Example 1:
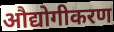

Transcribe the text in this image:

औद्योगीकरण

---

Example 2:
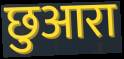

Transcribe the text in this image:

छुआरा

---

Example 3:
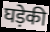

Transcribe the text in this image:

घड़ेकी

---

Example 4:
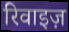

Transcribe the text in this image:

रिवाइज़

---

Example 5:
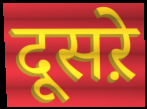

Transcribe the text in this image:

दूसऱे